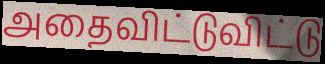
அதைவிட்டுவிட்டு